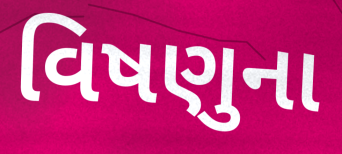
વિષણુના